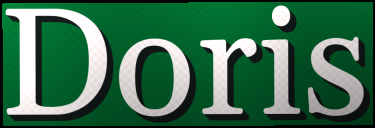
Doris